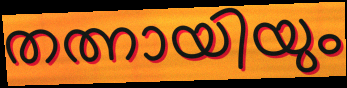
തത്നായിയും